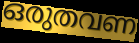
ഒരുതവണ